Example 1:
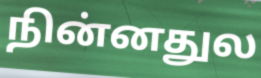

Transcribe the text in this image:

நின்னதுல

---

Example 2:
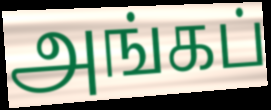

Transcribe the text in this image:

அங்கப்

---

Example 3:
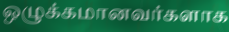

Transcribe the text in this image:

ஒழுக்கமானவர்களாக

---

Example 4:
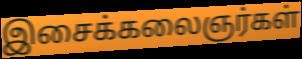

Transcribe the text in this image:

இசைக்கலைஞர்கள்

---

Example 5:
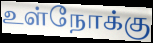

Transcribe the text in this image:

உள்நோக்கு